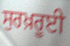
ਸੁਰਖ਼ਰੂਈ